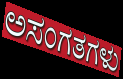
ಅಸಂಗತಗಳು